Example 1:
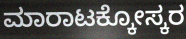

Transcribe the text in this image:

ಮಾರಾಟಕ್ಕೋಸ್ಕರ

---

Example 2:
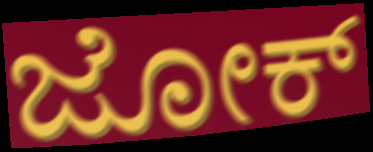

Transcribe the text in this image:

ಜೋಕ್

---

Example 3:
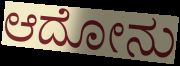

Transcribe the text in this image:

ಆದೋನು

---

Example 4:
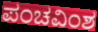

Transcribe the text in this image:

ಪಂಚವಿಂಶ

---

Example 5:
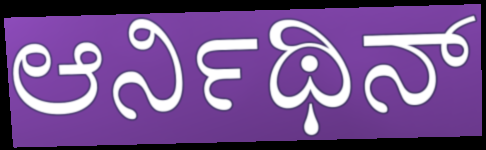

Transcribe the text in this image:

ಆರ್ನಿಥಿನ್